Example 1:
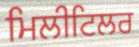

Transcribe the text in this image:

ਮਿਲੀਟਿਲਰ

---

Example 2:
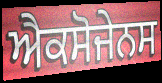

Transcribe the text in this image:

ਐਕਸੋਜੇਨਸ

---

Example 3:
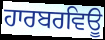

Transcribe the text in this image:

ਹਾਰਬਰਵਿਊ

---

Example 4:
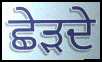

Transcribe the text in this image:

ਛੇੜਦੇ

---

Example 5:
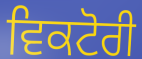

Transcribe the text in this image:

ਵਿਕਟੋਰੀ